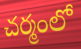
చర్మంలో